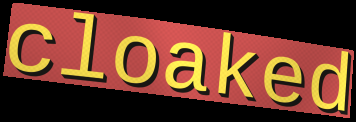
cloaked